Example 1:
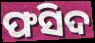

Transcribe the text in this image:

ଫସିଦ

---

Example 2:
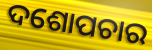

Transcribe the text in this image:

ଦଶୋପଚାର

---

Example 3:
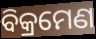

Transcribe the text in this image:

ବିକ୍ରମେଣ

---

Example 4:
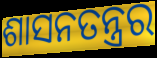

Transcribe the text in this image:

ଶାସନତନ୍ତ୍ରର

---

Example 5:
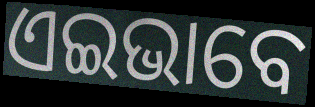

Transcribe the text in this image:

ଏଇଭାବେ